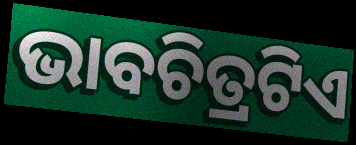
ଭାବଚିତ୍ରଟିଏ